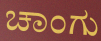
ಚಾಂಗು